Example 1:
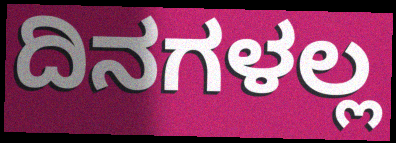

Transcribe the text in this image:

ದಿನಗಳಲ್ಲ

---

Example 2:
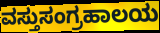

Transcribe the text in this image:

ವಸ್ತುಸಂಗ್ರಹಾಲಯ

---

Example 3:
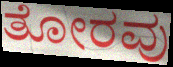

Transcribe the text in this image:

ತೋರವು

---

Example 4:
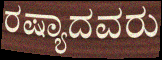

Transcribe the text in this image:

ರಷ್ಯಾದವರು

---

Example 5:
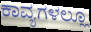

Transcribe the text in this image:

ಕಾವ್ಯಗಳಲ್ಲೂ